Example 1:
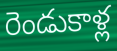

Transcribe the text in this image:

రెండుకాళ్ల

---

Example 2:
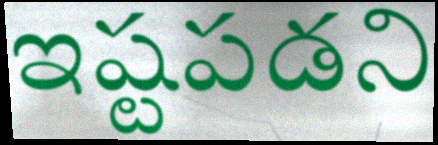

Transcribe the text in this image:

ఇష్టపడని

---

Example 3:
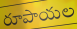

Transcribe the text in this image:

రూపాయల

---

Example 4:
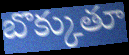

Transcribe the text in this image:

బొక్కుతూ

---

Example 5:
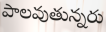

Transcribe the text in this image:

పాలవుతున్నరు